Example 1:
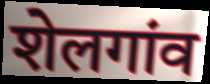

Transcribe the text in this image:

शेलगांव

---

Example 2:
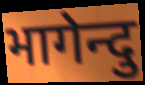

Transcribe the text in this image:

भागेन्दु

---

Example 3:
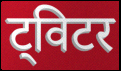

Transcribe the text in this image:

ट्विटर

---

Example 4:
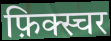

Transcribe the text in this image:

फ़िक्स्चर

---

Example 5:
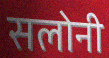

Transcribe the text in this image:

सलोनी